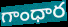
గాంధార